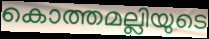
കൊത്തമല്ലിയുടെ